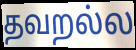
தவறல்ல